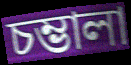
চম্ভালা